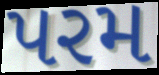
પરમ